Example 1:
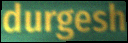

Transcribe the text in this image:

durgesh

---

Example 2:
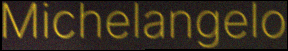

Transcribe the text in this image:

Michelangelo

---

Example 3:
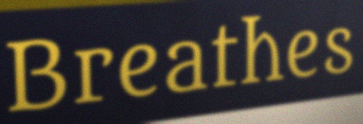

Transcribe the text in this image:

Breathes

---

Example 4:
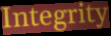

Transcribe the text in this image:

Integrity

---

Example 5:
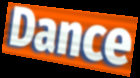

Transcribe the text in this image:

Dance